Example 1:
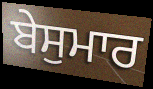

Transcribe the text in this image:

ਬੇਸੁਮਾਰ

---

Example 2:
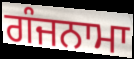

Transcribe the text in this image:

ਗੰਜਨਾਮਾ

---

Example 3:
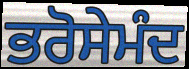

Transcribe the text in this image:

ਭਰੋਸੇਮੰਦ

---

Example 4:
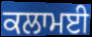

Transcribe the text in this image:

ਕਲਾਮਈ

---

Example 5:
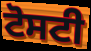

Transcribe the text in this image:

ਟੋਸਟੀ